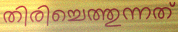
തിരിച്ചെത്തുന്നത്